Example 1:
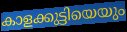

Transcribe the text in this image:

കാളക്കുട്ടിയെയും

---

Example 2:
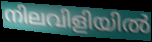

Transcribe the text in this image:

നിലവിളിയിൽ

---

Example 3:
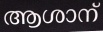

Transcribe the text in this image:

ആശാന്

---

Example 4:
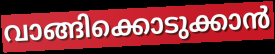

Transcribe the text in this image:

വാങ്ങിക്കൊടുക്കാൻ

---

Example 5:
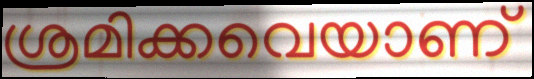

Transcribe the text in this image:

ശ്രമിക്കവെയാണ്